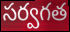
సర్వగత